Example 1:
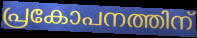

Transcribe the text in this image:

പ്രകോപനത്തിന്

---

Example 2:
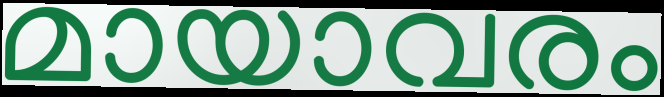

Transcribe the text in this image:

മായാവരം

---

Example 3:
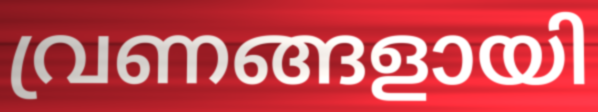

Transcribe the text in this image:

വ്രണങ്ങളായി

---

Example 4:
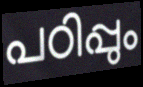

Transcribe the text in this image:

പഠിപ്പും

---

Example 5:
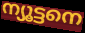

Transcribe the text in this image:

ന്യൂട്ടനെ